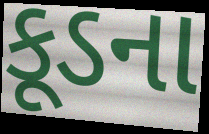
કૂડના